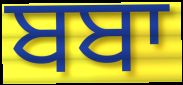
ਬਬਾ